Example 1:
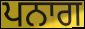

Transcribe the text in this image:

ਪਨਾਗ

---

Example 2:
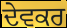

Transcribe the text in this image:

ਦੇਵਕਰ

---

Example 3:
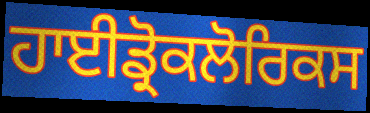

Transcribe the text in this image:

ਹਾਈਡ੍ਰੋਕਲੋਰਿਕਸ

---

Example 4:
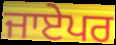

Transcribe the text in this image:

ਜਾਏਪਰ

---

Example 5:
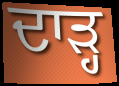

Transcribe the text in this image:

ਦਾੜ੍ਹ